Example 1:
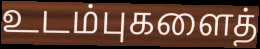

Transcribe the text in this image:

உடம்புகளைத்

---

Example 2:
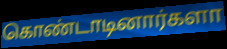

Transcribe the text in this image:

கொண்டாடினார்களா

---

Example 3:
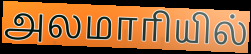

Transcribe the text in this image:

அலமாரியில்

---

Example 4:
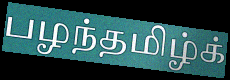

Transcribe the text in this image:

பழந்தமிழ்க்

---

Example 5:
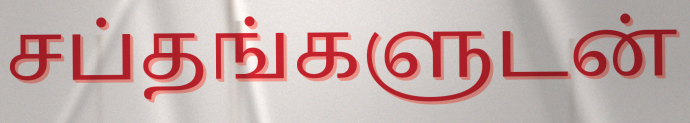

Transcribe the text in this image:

சப்தங்களுடன்